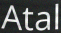
Atal